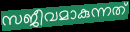
സജീവമാകുന്നത്